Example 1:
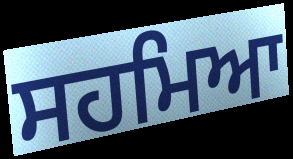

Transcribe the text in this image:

ਸਹਮਿਆ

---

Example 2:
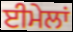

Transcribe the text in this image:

ਈਮੇਲਾਂ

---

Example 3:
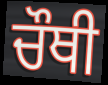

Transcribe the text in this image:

ਚੌਥੀ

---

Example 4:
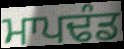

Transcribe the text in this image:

ਮਾਪਢੰਡ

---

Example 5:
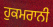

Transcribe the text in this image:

ਹੁਕਮਰਾਨੀ